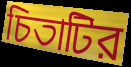
চিতাটির